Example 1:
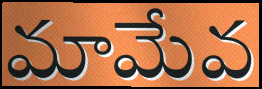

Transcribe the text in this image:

మామేవ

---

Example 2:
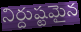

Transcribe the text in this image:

నిర్దుష్టమైన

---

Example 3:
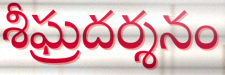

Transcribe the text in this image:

శీఘ్రదర్శనం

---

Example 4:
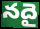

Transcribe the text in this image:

నదై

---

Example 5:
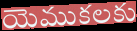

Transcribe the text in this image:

యెముకలకు